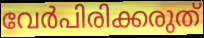
വേർപിരിക്കരുത്